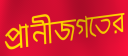
প্রানীজগতের